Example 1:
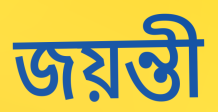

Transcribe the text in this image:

জয়ন্তী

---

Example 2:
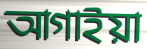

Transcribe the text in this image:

আগাইয়া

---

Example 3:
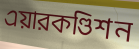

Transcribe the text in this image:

এয়ারকণ্ডিশন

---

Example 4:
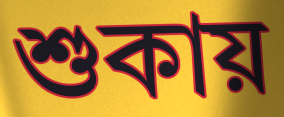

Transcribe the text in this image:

শুকায়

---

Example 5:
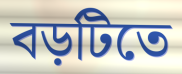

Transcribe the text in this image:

বড়টিতে